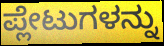
ಪ್ಲೇಟುಗಳನ್ನು